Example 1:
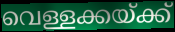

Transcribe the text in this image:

വെള്ളക്കയ്ക്ക്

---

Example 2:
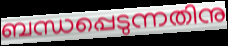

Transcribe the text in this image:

ബന്ധപ്പെടുന്നതിനു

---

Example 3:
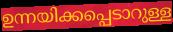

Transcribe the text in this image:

ഉന്നയിക്കപ്പെടാറുള്ള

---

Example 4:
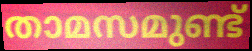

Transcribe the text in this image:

താമസമുണ്ട്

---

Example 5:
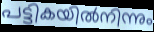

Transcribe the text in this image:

പട്ടികയിൽനിന്നും